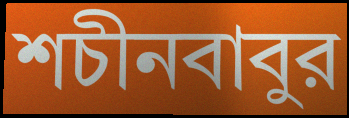
শচীনবাবুর